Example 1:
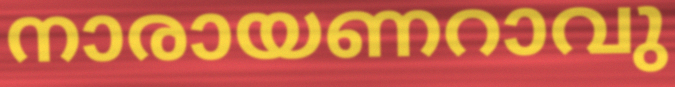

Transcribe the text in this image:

നാരായണറാവു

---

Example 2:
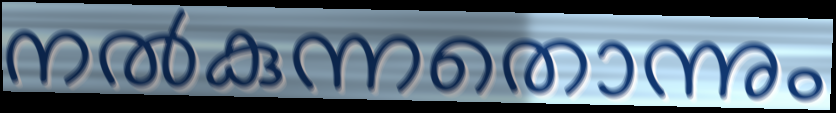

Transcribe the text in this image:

നൽകുന്നതൊന്നും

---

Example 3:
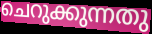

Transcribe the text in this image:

ചെറുക്കുന്നതു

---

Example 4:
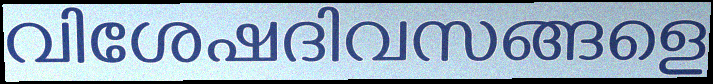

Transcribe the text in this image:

വിശേഷദിവസങ്ങളെ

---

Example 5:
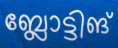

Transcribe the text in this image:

ബ്ലോട്ടിങ്